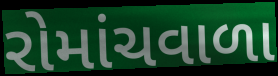
રોમાંચવાળા